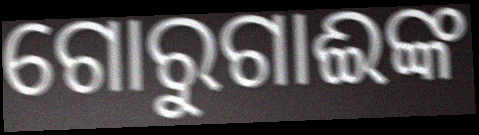
ଗୋରୁଗାଈଙ୍କ